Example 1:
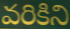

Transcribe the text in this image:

వరికిని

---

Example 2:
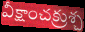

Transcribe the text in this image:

వీక్షాంచక్రుశ్చ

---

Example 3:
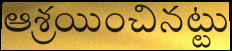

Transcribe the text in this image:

ఆశ్రయించినట్టు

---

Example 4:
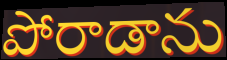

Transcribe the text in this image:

పోరాడాను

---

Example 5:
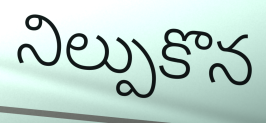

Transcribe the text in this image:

నిల్పుకొన